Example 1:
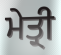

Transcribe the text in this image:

ਮੇਤ੍ਰੀ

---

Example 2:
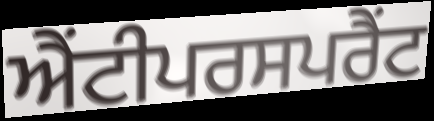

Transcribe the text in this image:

ਐਂਟੀਪਰਸਪਰੈਂਟ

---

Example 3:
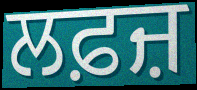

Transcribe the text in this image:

ਲਫ਼ਜ਼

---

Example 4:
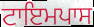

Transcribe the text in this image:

ਟਾਇਮਪਾਸ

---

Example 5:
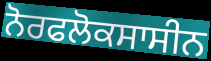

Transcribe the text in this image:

ਨੋਰਫਲੋਕਸਾਸੀਨ